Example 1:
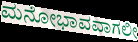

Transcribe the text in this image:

ಮನೋಭಾವವಾಗಲೀ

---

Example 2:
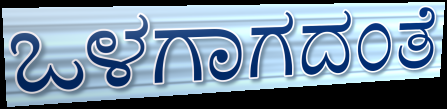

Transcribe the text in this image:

ಒಳಗಾಗದಂತೆ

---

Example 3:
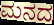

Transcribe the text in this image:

ಮನದ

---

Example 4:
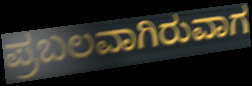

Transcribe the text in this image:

ಪ್ರಬಲವಾಗಿರುವಾಗ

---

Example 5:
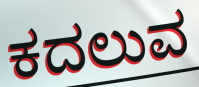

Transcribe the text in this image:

ಕದಲುವ